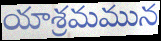
యాశ్రమమున